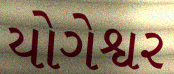
યોગેશ્વર